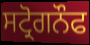
ਸਟ੍ਰੋਗਨੌਫ